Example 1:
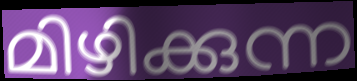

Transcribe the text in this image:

മിഴിക്കുന്ന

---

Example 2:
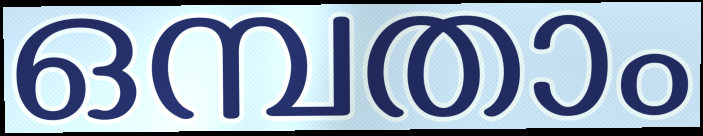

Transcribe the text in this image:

ഒമ്പതാം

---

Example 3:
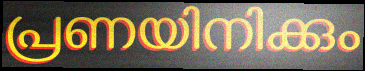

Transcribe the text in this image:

പ്രണയിനിക്കും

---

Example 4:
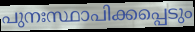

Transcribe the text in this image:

പുനഃസ്ഥാപിക്കപ്പെടും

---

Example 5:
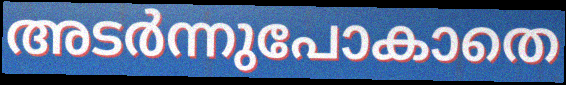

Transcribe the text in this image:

അടർന്നുപോകാതെ